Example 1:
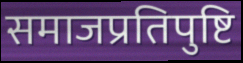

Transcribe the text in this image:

समाजप्रतिपुष्टि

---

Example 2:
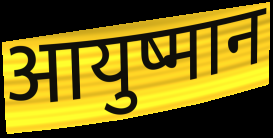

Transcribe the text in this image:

आयुष्मान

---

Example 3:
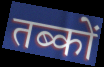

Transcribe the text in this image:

तब्कों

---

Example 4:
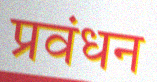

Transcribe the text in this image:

प्रवंधन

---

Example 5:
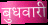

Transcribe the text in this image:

बुधवारी